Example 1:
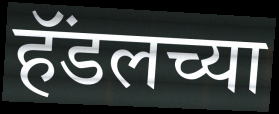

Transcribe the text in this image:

हॅंडलच्या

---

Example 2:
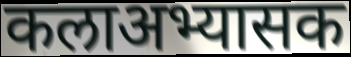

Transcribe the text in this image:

कलाअभ्यासक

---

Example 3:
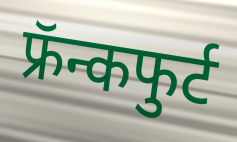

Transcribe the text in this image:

फ्रॅन्कफुर्ट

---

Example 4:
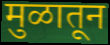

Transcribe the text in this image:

मुळातून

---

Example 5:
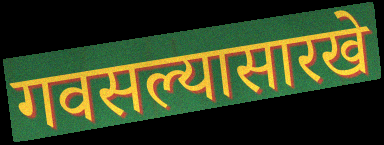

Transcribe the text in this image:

गवसल्यासारखे